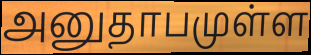
அனுதாபமுள்ள